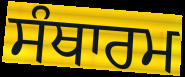
ਸੰਥਾਰਮ